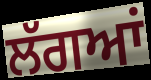
ਲੱਗਆਂ